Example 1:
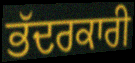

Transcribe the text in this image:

ਭੱਦਰਕਾਰੀ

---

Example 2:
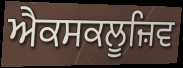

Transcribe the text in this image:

ਐਕਸਕਲੂਜ਼ਿਵ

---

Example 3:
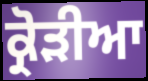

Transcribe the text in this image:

ਕ੍ਰੋੜੀਆ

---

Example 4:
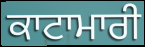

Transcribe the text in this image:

ਕਾਟਾਮਾਰੀ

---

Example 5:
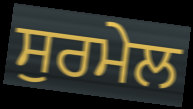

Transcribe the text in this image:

ਸੁਰਮੇਲ